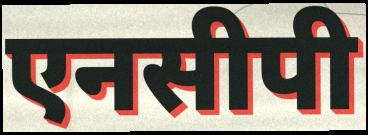
एनसीपी